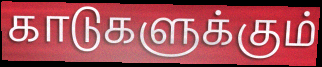
காடுகளுக்கும்